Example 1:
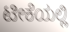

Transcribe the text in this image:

ಟೀಕೆಯಲ್ಲಿ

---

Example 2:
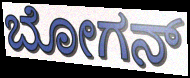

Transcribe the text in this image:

ಬೋಗನ್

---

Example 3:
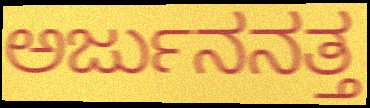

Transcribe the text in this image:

ಅರ್ಜುನನತ್ತ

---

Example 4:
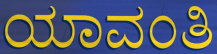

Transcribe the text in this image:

ಯಾವಂತಿ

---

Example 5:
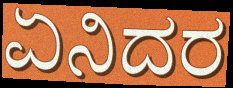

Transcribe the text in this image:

ಏನಿದರ